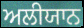
ਅਲੀਯਾਨ